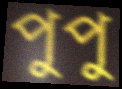
পুপু